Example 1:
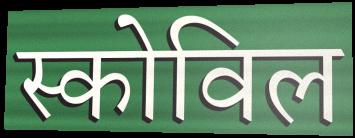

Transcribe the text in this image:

स्कोविल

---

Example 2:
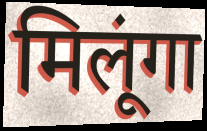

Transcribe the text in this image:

मिलूंगा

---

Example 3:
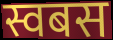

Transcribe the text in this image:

स्वबस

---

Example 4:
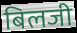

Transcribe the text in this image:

बिलजी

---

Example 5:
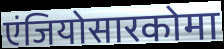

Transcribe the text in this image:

एंजियोसारकोमा